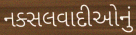
નક્સલવાદીઓનું